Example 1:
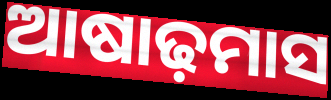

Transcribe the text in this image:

ଆଷାଢ଼ମାସ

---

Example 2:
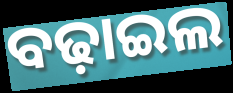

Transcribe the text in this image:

ବଢ଼ାଇଲ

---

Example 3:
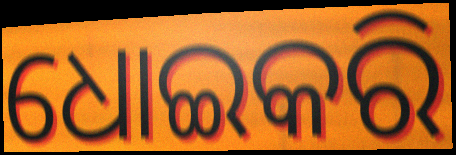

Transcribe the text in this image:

ଧୋଇକରି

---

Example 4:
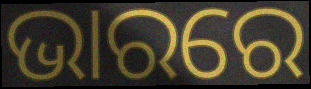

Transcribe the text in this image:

ଭାରରେ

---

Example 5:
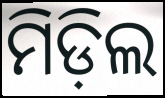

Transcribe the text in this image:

ମିଡ଼ିଲ